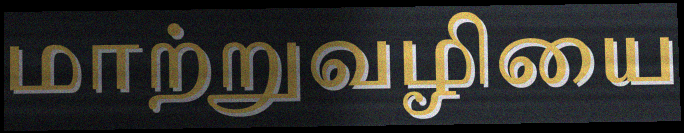
மாற்றுவழியை